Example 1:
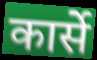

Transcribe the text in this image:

कार्से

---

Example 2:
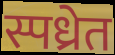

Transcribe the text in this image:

स्पध्रेत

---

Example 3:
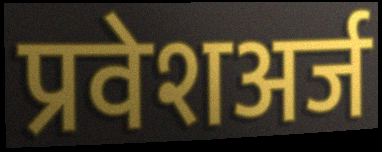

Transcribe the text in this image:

प्रवेशअर्ज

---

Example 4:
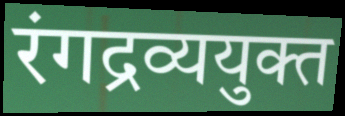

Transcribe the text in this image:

रंगद्रव्ययुक्त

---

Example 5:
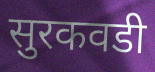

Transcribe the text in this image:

सुरकवडी